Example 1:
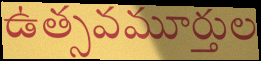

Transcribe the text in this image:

ఉత్సవమూర్తుల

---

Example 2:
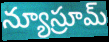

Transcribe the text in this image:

న్యూస్రూమ్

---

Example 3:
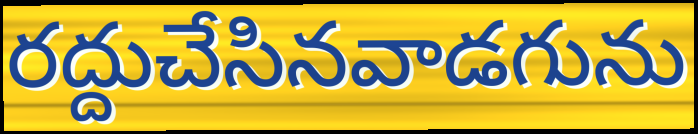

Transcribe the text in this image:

రద్దుచేసినవాడగును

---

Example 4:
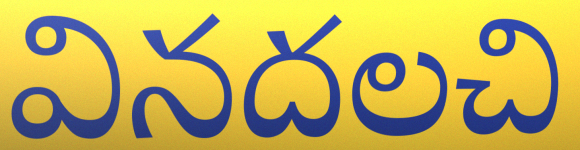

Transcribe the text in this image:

వినదలచి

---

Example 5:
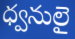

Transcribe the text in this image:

ధ్వనులై